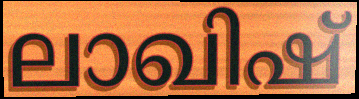
ലാഖിഷ്